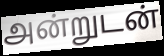
அன்றுடன்